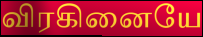
விரகினையே